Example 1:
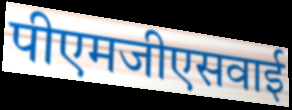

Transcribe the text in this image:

पीएमजीएसवाई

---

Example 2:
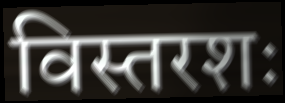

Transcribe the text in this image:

विस्तरशः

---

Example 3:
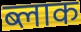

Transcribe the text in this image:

ब्लाक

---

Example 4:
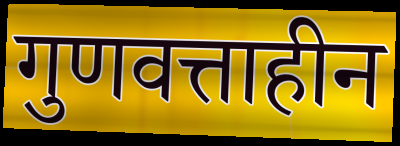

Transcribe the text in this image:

गुणवत्ताहीन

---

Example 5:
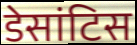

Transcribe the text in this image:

डेसांटिस